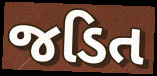
જડિત